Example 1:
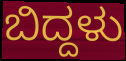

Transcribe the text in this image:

ಬಿದ್ದಳು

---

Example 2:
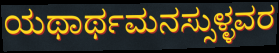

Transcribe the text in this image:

ಯಥಾರ್ಥಮನಸ್ಸುಳ್ಳವರ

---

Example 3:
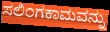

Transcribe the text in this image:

ಸಲಿಂಗಕಾಮವನ್ನು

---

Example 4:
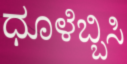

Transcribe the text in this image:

ಧೂಳೆಬ್ಬಿಸಿ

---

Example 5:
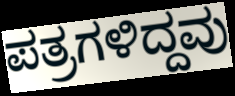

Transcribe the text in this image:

ಪತ್ರಗಳಿದ್ದವು